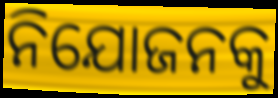
ନିଯୋଜନକୁ